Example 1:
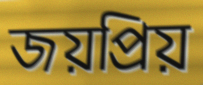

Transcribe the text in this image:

জয়প্রিয়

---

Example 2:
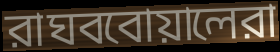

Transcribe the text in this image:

রাঘববোয়ালেরা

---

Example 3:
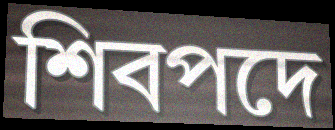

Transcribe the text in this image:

শিবপদে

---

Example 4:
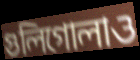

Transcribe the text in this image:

গুলিগোলাও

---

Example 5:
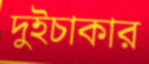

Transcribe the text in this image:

দুইচাকার